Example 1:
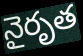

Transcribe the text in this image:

నైరృత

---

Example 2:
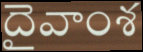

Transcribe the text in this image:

దైవాంశ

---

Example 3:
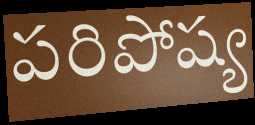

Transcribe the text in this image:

పరిపోష్య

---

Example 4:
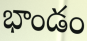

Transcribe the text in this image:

భాండం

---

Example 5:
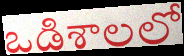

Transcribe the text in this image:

ఒడిశాలలో